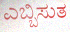
ಎಬ್ಬಿಸುತ